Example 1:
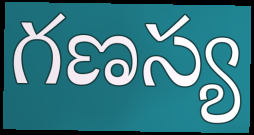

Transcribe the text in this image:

గణస్య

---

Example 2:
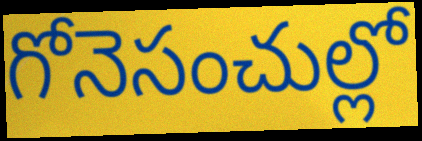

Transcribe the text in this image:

గోనెసంచుల్లో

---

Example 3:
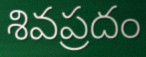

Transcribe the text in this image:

శివప్రదం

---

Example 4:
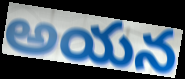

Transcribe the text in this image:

అయన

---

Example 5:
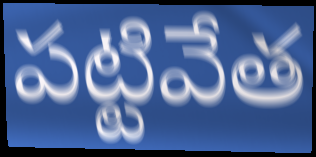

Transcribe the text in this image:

పట్టివేత